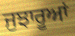
ਜੁਝਾਰੂਆਂ